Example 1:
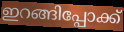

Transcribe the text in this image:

ഇറങ്ങിപ്പോക്ക്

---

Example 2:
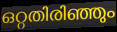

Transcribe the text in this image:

ഒറ്റതിരിഞ്ഞും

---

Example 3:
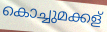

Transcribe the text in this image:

കൊച്ചുമക്കള്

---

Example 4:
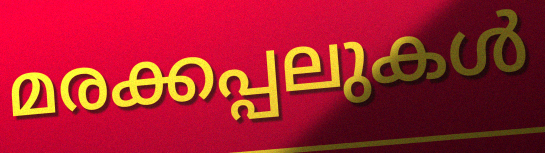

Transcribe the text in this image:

മരക്കപ്പലുകൾ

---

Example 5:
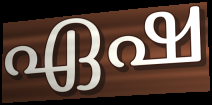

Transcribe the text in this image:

ഏഷ